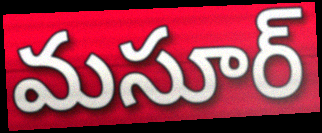
మసూర్